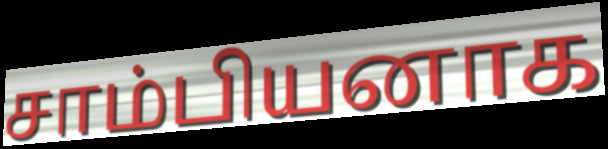
சாம்பியனாக